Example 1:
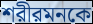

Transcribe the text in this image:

শরীরমনকে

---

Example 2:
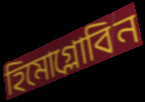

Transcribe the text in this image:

হিমোগ্লোবিন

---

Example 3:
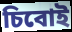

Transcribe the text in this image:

চিবোই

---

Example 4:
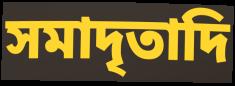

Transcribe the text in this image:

সমাদৃতাদি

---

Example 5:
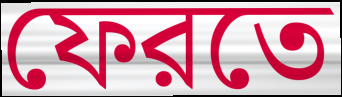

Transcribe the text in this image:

ফেরতে